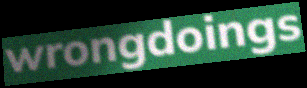
wrongdoings